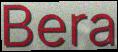
Bera